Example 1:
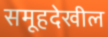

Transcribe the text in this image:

समूहदेखील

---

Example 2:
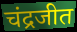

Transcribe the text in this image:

चंद्रजीत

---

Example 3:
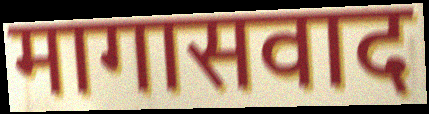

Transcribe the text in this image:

मागासवाद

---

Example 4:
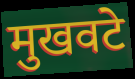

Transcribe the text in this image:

मुखवटे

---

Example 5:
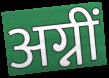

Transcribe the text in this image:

अग्नीं